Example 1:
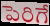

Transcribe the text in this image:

పెరిగే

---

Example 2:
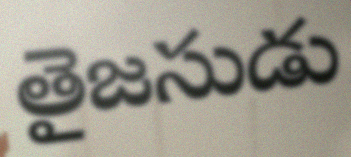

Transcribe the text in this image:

తైజసుడు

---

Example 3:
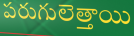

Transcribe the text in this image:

పరుగులెత్తాయి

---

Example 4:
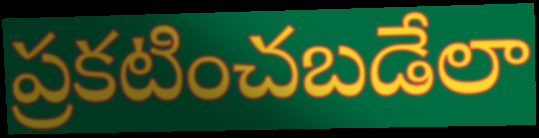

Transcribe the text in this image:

ప్రకటించబడేలా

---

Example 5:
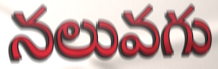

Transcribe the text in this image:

నలువగు